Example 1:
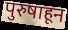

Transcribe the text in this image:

पुरुषाहून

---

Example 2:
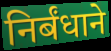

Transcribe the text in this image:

निर्बंधाने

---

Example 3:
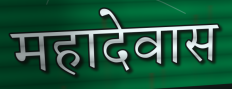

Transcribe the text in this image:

महादेवास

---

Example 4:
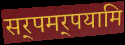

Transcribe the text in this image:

सर्पमर्पयामि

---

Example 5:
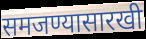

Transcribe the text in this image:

समजण्यासारखी